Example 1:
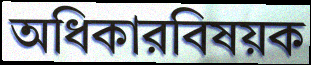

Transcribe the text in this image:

অধিকারবিষয়ক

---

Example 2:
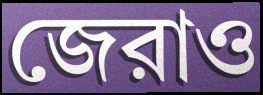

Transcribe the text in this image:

জেরাও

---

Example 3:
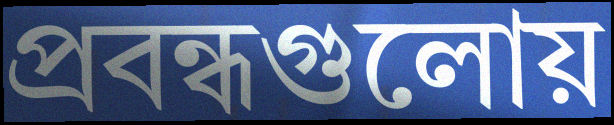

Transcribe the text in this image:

প্রবন্ধগুলোয়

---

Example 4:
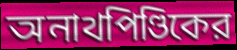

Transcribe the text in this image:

অনাথপিণ্ডিকের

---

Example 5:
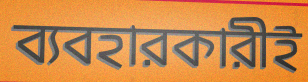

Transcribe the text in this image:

ব্যবহারকারীই